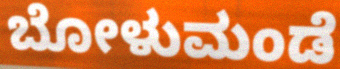
ಬೋಳುಮಂಡೆ